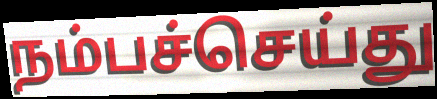
நம்பச்செய்து